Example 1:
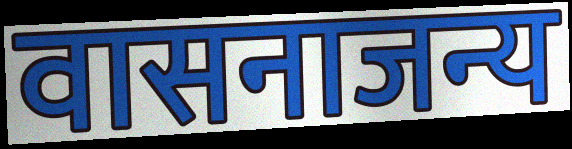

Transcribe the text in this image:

वासनाजन्य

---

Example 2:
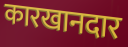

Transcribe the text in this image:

कारखानदार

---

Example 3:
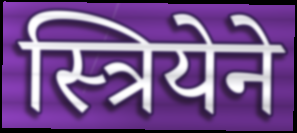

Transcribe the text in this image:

स्त्रियेने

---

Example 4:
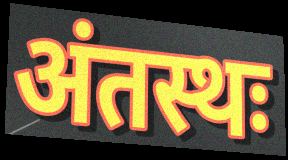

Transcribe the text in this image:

अंतस्थः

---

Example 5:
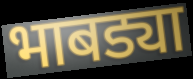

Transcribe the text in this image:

भाबड्या